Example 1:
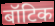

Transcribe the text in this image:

बॉटिक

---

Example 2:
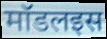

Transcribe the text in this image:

मॉडलइस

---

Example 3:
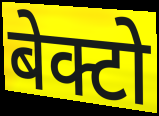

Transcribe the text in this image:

बेक्टो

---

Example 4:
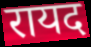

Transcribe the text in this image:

रायद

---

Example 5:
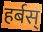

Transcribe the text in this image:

हर्बस्